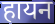
हायन